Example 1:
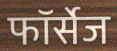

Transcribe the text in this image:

फॉर्सेज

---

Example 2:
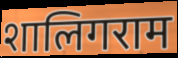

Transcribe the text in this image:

शालिगराम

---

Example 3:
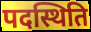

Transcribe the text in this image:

पदस्थिति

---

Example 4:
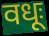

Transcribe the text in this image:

वधूः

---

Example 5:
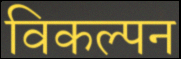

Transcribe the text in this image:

विकल्पन